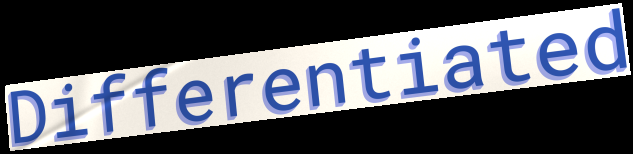
Differentiated